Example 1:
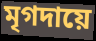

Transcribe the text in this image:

মৃগদায়ে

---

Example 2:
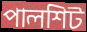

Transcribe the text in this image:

পালশিট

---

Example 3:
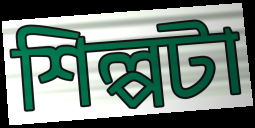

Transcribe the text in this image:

শিল্পটা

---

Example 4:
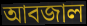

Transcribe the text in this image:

আবজাল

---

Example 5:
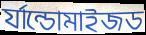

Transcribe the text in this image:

র্যান্ডোমাইজড